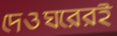
দেওঘরেরই